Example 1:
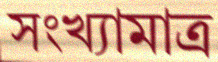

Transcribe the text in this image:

সংখ্যামাত্র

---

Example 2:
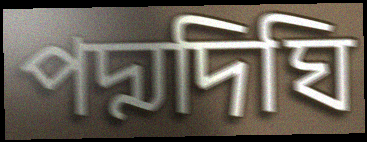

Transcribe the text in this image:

পদ্মদিঘি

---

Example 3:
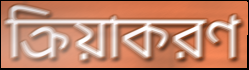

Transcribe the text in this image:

ক্রিয়াকরণ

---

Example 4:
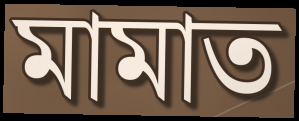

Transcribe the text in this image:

মামাত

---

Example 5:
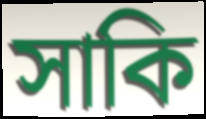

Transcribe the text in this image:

সাকি